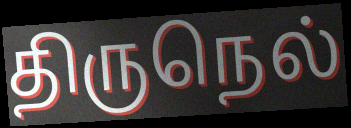
திருநெல்